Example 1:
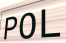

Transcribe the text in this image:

POL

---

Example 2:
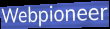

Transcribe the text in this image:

Webpioneer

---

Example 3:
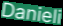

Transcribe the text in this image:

Danieli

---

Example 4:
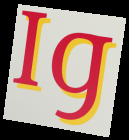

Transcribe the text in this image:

Ig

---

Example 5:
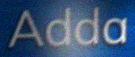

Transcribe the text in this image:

Adda